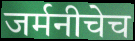
जर्मनीचेच